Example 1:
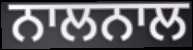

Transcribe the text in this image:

ਨਾਲਨਾਲ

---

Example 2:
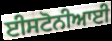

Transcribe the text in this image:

ਈਸਟੋਨੀਆਈ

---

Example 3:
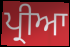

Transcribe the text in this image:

ਪ੍ਰੀਆ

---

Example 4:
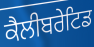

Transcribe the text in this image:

ਕੈਲੀਬਰੇਟਿਡ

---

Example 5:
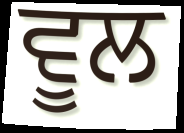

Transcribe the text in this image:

ਵੂਲ